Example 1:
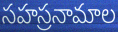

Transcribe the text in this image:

సహస్రనామాల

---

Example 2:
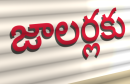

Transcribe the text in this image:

జాలర్లకు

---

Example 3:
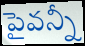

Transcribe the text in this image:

పైవన్నీ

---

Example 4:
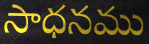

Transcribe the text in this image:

సాధనము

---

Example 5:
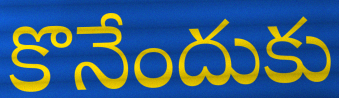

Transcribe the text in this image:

కొనేందుకు